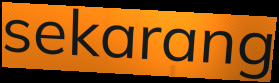
sekarang